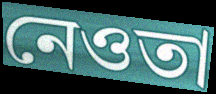
নেওতা